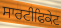
ਸਾਰਟੀਫਿਕੇਟ